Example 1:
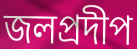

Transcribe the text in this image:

জলপ্রদীপ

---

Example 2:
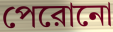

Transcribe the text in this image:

পেরোনো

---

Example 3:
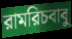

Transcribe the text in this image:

রামরিচবাবু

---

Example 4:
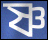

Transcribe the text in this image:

ষ্ণ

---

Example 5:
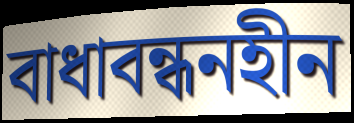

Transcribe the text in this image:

বাধাবন্ধনহীন